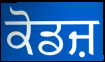
ਕੋਡਜ਼